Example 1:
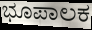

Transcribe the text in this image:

ಭೂಪಾಲಕ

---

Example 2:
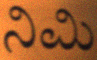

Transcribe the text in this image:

ನಿಮಿ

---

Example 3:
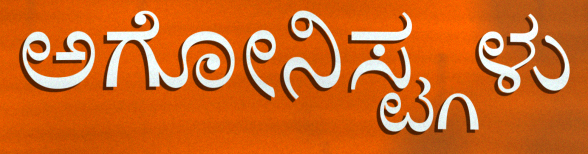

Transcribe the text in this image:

ಅಗೋನಿಸ್ಟ್ಗಳು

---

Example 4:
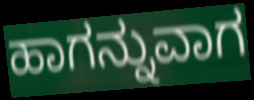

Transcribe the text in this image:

ಹಾಗನ್ನುವಾಗ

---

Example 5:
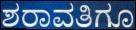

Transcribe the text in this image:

ಶರಾವತಿಗೂ